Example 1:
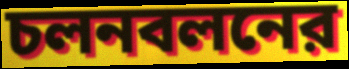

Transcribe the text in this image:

চলনবলনের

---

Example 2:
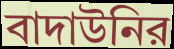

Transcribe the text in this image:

বাদাউনির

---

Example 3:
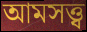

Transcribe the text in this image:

আমসত্ত্ব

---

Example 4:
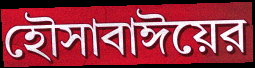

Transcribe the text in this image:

হৌসাবাঈয়ের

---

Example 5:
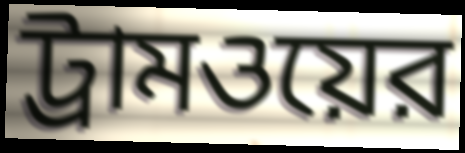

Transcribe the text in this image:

ট্রামওয়ের